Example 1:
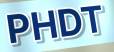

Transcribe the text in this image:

PHDT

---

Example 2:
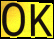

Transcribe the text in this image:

OK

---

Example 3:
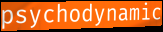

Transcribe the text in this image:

psychodynamic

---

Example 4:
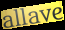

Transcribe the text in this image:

allave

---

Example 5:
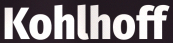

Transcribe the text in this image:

Kohlhoff